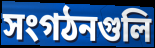
সংগঠনগুলি